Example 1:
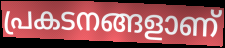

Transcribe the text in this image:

പ്രകടനങ്ങളാണ്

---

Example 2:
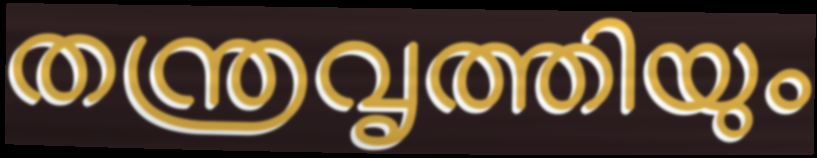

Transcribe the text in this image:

തന്ത്രവൃത്തിയും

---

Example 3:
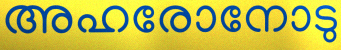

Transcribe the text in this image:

അഹരോനോടു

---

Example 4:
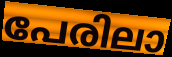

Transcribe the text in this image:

പേരിലാ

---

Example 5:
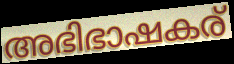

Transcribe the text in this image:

അഭിഭാഷകര്